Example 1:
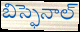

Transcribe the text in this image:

బిస్ఫెనాల్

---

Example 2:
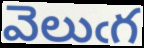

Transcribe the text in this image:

వెలుఁగ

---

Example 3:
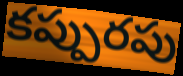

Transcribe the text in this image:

కప్పురపు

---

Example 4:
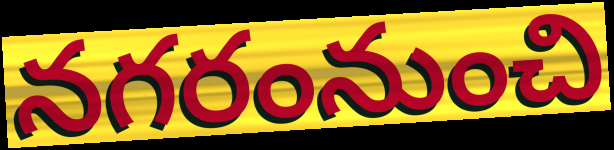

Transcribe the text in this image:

నగరంనుంచి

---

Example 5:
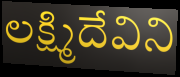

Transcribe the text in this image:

లక్ష్మిదేవిని